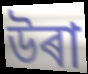
উৰা